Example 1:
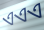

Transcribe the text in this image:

ଏଏଏ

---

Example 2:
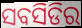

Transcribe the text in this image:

ସବସିଡିର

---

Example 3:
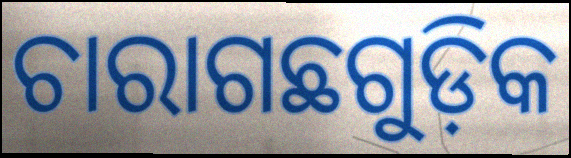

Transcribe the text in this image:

ଚାରାଗଛଗୁଡ଼ିକ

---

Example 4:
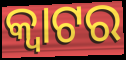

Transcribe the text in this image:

କ୍ୱାଟର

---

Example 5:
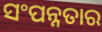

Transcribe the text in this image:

ସଂପନ୍ନତାର